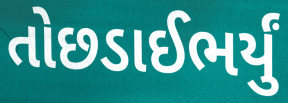
તોછડાઈભર્યું